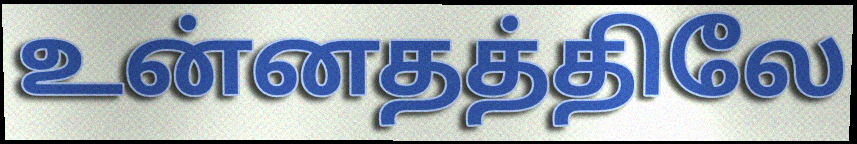
உன்னதத்திலே